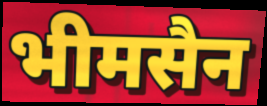
भीमसैन